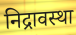
निद्रावस्था